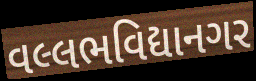
વલ્લભવિદ્યાનગર